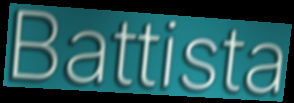
Battista